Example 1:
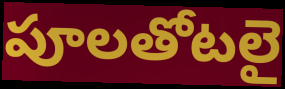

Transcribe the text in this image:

పూలతోటలై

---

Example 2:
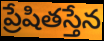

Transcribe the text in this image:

ప్రేషితస్తేన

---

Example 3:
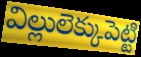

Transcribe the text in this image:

విల్లులెక్కుపెట్టి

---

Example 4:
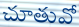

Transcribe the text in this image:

చూతువో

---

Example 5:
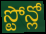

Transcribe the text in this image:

స్టోన్లో